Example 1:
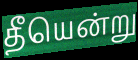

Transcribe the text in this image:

தீயென்று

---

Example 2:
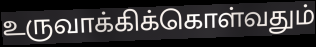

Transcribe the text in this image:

உருவாக்கிக்கொள்வதும்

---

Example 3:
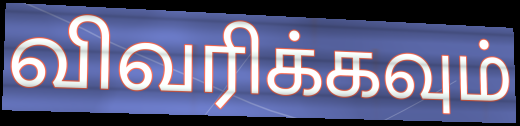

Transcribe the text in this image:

விவரிக்கவும்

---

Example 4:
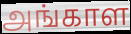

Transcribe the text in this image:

அங்காள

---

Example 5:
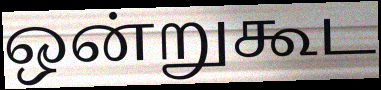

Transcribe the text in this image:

ஒன்றுகூட